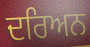
ਦਰਿਅਨ